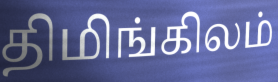
திமிங்கிலம்